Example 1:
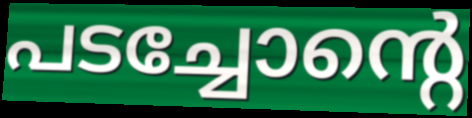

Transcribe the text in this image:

പടച്ചോന്റെ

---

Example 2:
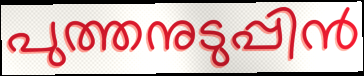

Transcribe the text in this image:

പുത്തനുടുപ്പിൻ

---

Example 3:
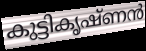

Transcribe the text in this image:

കുട്ടികൃഷ്ണൻ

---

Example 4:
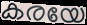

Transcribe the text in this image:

കരയേ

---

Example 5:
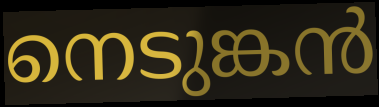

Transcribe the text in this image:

നെടുങ്കൻ